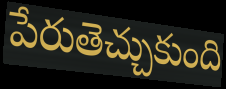
పేరుతెచ్చుకుంది